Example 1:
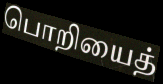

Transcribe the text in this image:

பொறியைத்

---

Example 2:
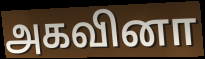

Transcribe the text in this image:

அகவினா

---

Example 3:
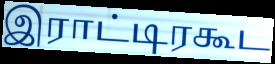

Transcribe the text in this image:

இராட்டிரகூட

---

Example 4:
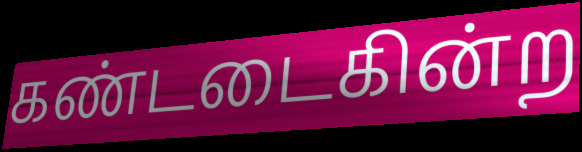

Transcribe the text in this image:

கண்டடைகின்ற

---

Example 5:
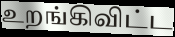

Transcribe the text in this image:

உறங்கிவிட்ட